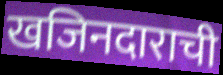
खजिनदाराची